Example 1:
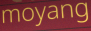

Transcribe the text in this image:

moyang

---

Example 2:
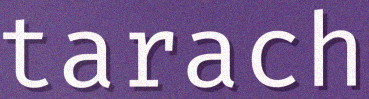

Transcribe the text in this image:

tarach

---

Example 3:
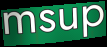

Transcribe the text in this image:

msup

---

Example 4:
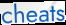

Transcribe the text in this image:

cheats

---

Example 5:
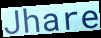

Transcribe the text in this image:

Jhare